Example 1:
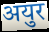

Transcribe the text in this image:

अयुर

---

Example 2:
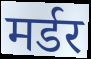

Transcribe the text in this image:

मर्डर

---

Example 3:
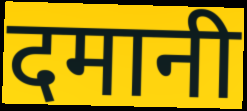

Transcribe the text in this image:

दमानी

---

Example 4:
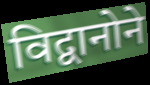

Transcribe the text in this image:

विद्वानोने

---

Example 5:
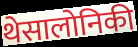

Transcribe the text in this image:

थेसालोनिकी